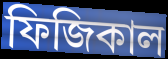
ফিজিকাল